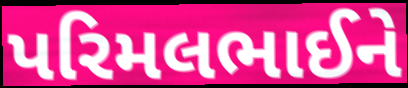
પરિમલભાઈને